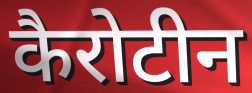
कैरोटीन